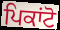
ਪਿਕਾਂਟੋ